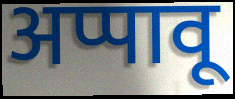
अप्पावू